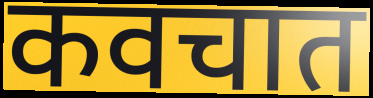
कवचात